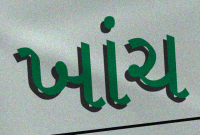
ખાંચ